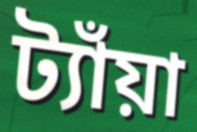
ট্যাঁয়া